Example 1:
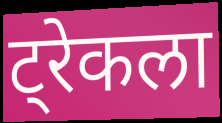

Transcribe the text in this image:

ट्रेकला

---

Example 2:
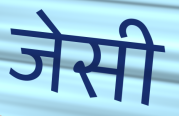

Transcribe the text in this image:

जेसी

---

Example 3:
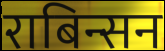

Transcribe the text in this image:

राबिन्सन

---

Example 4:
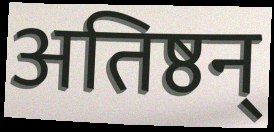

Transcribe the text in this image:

अतिष्ठन्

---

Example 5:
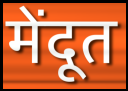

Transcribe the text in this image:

मेंदूत